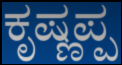
ಕೃಷ್ಣಪ್ಪ